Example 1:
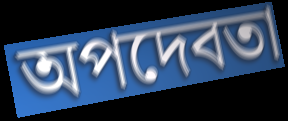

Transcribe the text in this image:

অপদেবতা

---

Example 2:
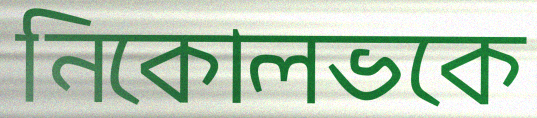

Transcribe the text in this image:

নিকোলভকে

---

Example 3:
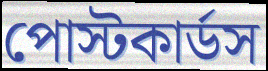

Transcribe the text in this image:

পোস্টকার্ডস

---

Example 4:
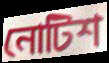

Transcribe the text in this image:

নোটিশ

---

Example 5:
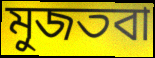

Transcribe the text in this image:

মুজতবা